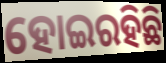
ହୋଇରହିଛି